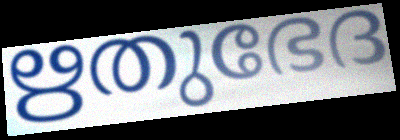
ഋതുഭേദ